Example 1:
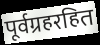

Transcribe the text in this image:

पूर्वग्रहरहित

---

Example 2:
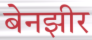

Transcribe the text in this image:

बेनझीर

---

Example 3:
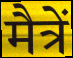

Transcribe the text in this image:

मैत्रें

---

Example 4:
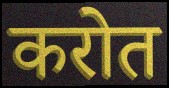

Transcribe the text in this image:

करोत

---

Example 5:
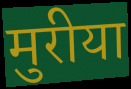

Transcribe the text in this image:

मुरीया